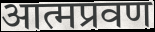
आत्मप्रवण